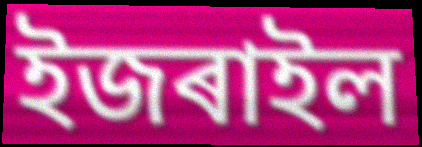
ইজৰাইল